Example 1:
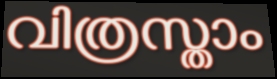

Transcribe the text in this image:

വിത്രസ്താം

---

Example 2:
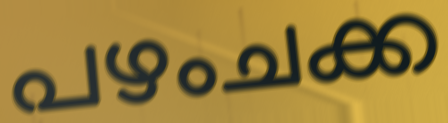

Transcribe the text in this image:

പഴംചക്ക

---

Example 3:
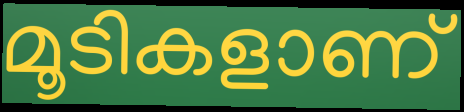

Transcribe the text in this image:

മൂടികളാണ്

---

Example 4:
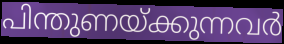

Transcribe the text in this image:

പിന്തുണയ്ക്കുന്നവർ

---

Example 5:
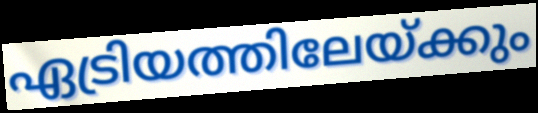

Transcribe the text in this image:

ഏട്രിയത്തിലേയ്ക്കും